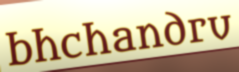
bhchandru